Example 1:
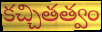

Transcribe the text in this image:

కచ్చితత్వం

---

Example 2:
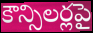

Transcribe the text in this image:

కౌన్సిలర్లపై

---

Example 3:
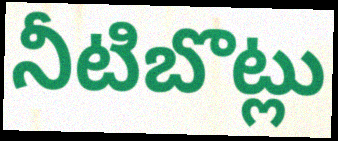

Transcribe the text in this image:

నీటిబొట్లు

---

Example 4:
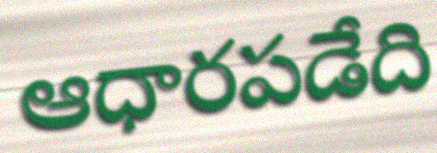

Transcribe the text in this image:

ఆధారపడేది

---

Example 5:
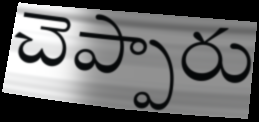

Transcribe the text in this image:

చెప్పారు